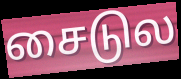
சைடுல